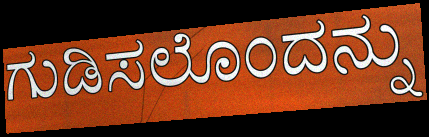
ಗುಡಿಸಲೊಂದನ್ನು